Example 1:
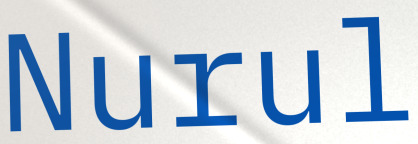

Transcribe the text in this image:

Nurul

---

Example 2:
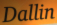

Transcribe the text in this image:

Dallin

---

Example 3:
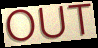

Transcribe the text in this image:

OUT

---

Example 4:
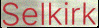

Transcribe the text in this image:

Selkirk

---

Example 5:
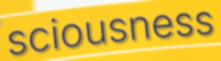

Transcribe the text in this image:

sciousness